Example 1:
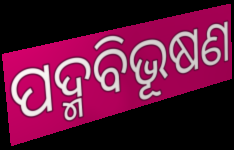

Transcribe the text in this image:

ପଦ୍ମବିଭୂଷଣ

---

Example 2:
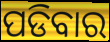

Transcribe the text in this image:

ପଡିବାର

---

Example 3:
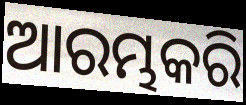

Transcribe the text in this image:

ଆରମ୍ଭକରି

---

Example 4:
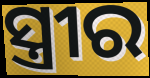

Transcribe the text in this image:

ସ୍ତ୍ରୀର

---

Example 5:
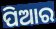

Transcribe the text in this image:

ପିଆର